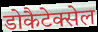
डोकैटेक्सेल